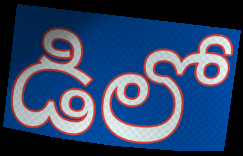
డిలో